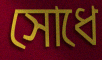
সোধে